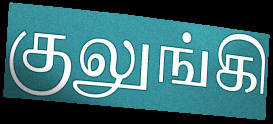
குலுங்கி